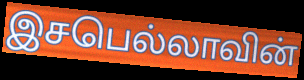
இசபெல்லாவின்